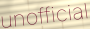
unofficial